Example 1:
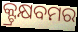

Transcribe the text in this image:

କ୍ଟ୍ରକ୍ଷବମର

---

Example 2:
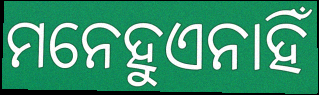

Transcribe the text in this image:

ମନେହୁଏନାହିଁ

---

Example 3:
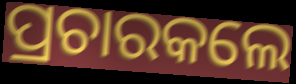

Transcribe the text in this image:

ପ୍ରଚାରକଲେ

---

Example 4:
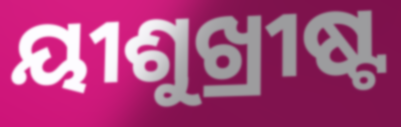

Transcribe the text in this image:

ୟୀଶୁଖ୍ରୀଷ୍ଟ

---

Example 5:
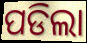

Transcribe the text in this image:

ପଡିଲା